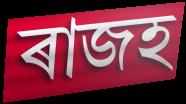
ৰাজহ